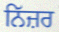
ਨਿੱਜ਼ਰ